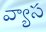
వ్యాస